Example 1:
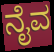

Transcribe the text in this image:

ನೈವ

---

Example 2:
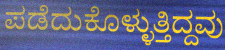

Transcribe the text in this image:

ಪಡೆದುಕೊಳ್ಳುತ್ತಿದ್ದವು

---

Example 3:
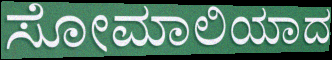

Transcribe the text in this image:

ಸೋಮಾಲಿಯಾದ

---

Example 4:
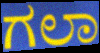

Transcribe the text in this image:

ಗಲಾ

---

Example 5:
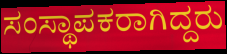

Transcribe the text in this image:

ಸಂಸ್ಥಾಪಕರಾಗಿದ್ದರು